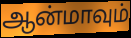
ஆன்மாவும்